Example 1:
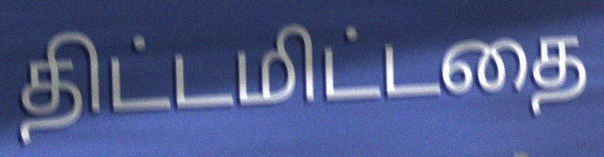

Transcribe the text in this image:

திட்டமிட்டதை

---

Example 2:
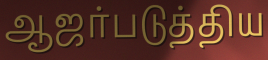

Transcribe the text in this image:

ஆஜர்படுத்திய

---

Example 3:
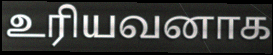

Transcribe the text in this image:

உரியவனாக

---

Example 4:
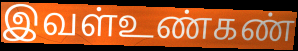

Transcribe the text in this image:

இவள்உண்கண்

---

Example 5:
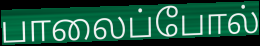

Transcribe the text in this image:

பாலைப்போல்